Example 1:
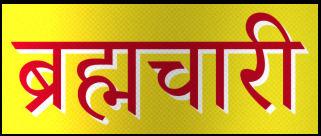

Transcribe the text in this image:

ब्रह्मचारी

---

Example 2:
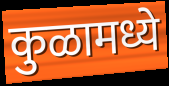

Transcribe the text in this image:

कुळामध्ये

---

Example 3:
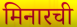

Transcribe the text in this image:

मिनारची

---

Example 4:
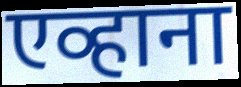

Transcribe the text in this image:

एव्हाना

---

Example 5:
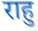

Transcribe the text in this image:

राहु